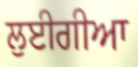
ਲੁਈਗੀਆ